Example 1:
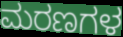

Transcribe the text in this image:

ಮರಣಗಳ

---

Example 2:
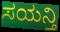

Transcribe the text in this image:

ಸಯನ್ತಿ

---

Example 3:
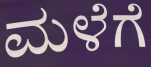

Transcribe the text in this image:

ಮಳೆಗೆ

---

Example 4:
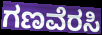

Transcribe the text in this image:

ಗಣವೆರಸಿ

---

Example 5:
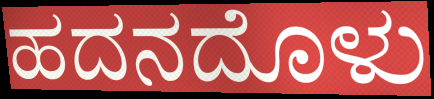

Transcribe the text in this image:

ಹದನದೊಳು